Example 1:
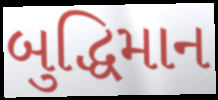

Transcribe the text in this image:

બુદ્ધિમાન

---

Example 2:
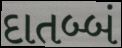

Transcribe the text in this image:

દાતબ્બં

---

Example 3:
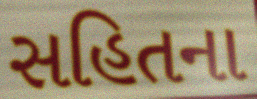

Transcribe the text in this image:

સહિતના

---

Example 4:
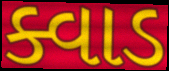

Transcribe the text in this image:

ક્વાડ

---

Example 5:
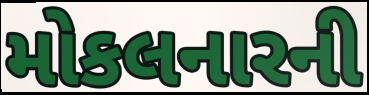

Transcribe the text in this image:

મોકલનારની